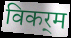
विकर्म